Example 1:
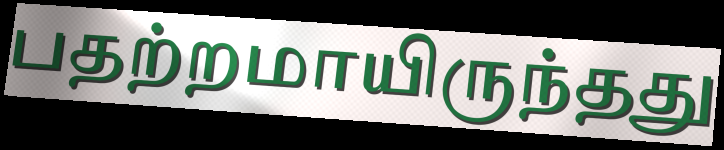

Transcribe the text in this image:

பதற்றமாயிருந்தது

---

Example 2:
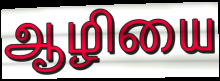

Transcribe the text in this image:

ஆழியை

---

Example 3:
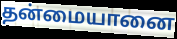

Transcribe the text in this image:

தன்மையானை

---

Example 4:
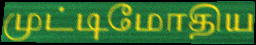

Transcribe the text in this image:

முட்டிமோதிய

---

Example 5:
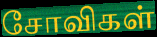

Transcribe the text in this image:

சோவிகள்